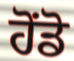
ਹੋਂਡੋ